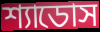
শ্যাডোস